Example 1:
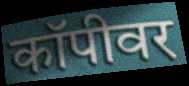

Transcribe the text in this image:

कॉपीवर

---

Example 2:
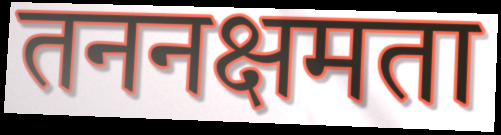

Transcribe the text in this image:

तननक्षमता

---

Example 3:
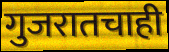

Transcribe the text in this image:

गुजरातचाही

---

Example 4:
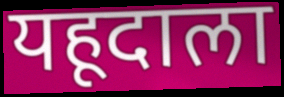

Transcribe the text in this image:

यहूदाला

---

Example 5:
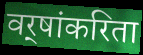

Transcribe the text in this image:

वर्षांकरिता